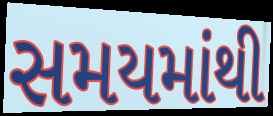
સમયમાંથી